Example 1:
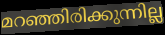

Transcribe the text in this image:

മറഞ്ഞിരിക്കുന്നില്ല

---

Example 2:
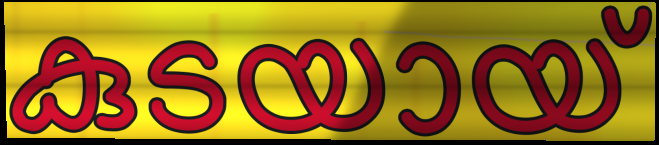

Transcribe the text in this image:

കുടയായ്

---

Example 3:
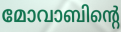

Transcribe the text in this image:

മോവാബിന്റെ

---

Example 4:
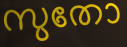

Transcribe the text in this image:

സുതോ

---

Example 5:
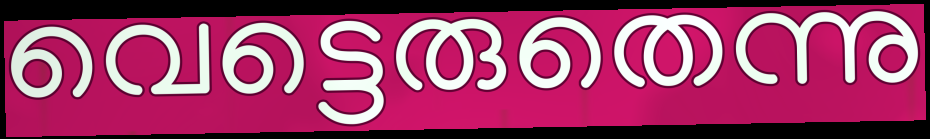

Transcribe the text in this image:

വെട്ടെരുതെന്നു